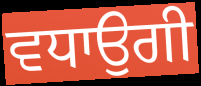
ਵਧਾਉਗੀ